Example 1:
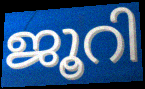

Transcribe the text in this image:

ജൂറി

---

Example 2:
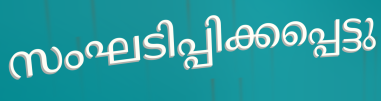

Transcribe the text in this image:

സംഘടിപ്പിക്കപ്പെട്ടു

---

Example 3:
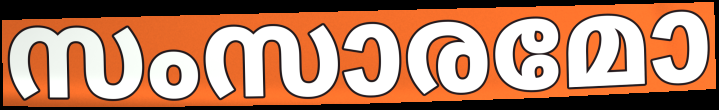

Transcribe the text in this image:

സംസാരമോ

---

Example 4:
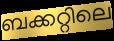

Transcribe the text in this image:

ബക്കറ്റിലെ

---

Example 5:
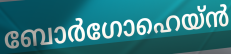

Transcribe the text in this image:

ബോർഗോഹെയ്ൻ